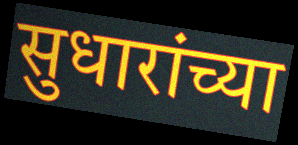
सुधारांच्या